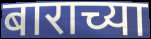
बाराच्या